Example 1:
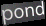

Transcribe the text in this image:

pond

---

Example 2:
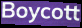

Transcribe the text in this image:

Boycott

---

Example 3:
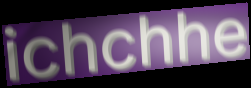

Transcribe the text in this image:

ichchhe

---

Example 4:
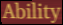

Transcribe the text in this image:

Ability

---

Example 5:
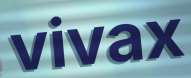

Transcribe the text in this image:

vivax